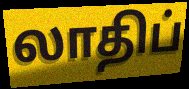
லாதிப்